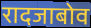
रादजाबोव